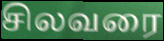
சிலவரை